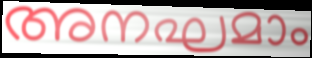
അനഘമാം